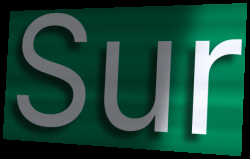
Sur